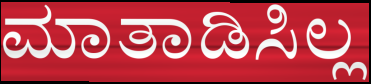
ಮಾತಾಡಿಸಿಲ್ಲ